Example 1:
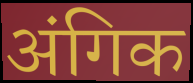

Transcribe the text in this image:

अंगिक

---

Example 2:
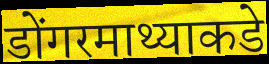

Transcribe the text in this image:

डोंगरमाथ्याकडे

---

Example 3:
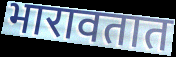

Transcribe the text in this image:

भारावतात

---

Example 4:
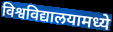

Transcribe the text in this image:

विश्वविद्यालयामध्ये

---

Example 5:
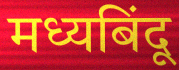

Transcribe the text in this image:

मध्यबिंदू